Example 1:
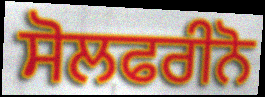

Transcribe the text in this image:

ਸੋਲਫਰੀਨੋ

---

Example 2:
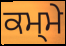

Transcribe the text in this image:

ਕਮ੍ਮੇ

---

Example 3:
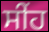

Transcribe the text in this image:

ਸੀਂਹ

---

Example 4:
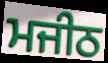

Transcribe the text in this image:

ਮਜੀਠ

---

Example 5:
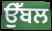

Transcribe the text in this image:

ਉੱਬਲ